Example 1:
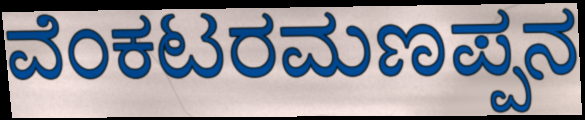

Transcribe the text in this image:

ವೆಂಕಟರಮಣಪ್ಪನ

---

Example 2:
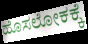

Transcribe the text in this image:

ಹೊಸಲೋಕಕ್ಕೆ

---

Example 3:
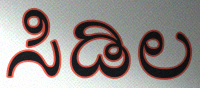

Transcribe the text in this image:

ಸಿಡಿಲ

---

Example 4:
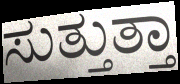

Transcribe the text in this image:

ಸುತ್ತುತ್ತಾ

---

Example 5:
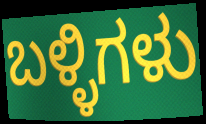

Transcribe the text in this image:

ಬಳ್ಳಿಗಳು